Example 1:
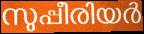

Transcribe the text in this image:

സുപ്പീരിയർ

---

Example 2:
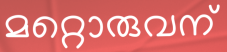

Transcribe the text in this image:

മറ്റൊരുവന്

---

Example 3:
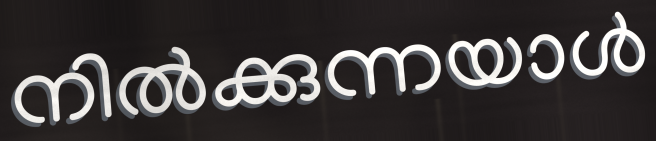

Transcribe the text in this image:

നിൽക്കുന്നയാൾ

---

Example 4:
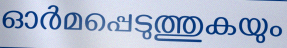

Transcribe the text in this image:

ഓർമപ്പെടുത്തുകയും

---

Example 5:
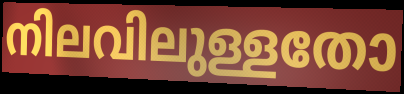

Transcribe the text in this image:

നിലവിലുള്ളതോ